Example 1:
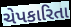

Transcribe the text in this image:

ચેપકારિતા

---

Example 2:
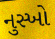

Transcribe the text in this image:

નુસ્ખો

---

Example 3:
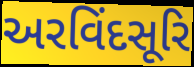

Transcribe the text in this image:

અરવિંદસૂરિ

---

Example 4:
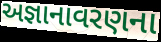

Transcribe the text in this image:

અજ્ઞાનાવરણના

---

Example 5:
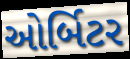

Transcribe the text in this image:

ઓર્બિટર